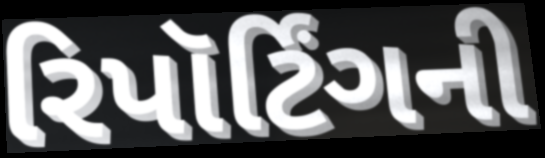
રિપૉર્ટિંગની